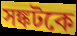
সঙ্কটকে